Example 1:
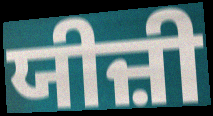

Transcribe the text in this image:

ਯੀਜ਼ੀ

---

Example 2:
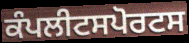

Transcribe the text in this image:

ਕੰਪਲੀਟਸਪੋਰਟਸ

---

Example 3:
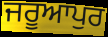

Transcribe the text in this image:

ਜਰੂਆਪੁਰ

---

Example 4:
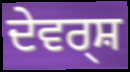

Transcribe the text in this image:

ਦੇਵਰ੍ਸ਼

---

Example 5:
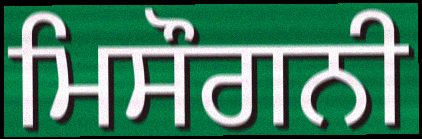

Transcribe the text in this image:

ਮਿਸੌਗਨੀ